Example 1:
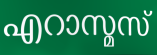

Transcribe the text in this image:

എറാസ്മസ്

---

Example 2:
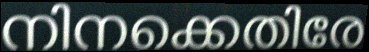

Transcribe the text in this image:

നിനക്കെതിരേ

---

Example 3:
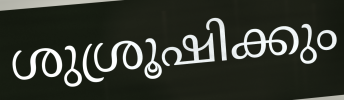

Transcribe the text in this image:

ശുശ്രൂഷിക്കും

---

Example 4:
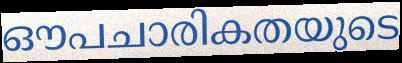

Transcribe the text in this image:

ഔപചാരികതയുടെ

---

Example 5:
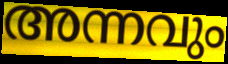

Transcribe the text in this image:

അന്നവും